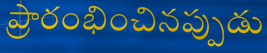
ప్రారంభించినప్పుడు